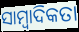
ସାମ୍ୱାଦିକତା